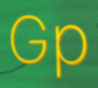
Gp